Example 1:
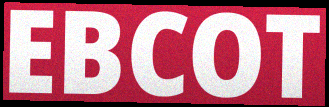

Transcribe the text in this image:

EBCOT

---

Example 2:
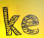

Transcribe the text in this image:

ke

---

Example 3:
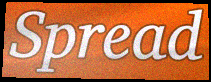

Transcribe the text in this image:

Spread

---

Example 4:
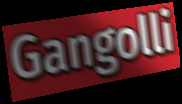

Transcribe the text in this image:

Gangolli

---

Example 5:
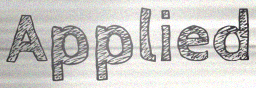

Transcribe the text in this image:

Applied